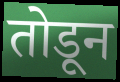
तोडून